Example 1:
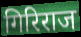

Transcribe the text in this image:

गिरिराज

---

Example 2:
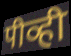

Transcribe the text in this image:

पीव्ही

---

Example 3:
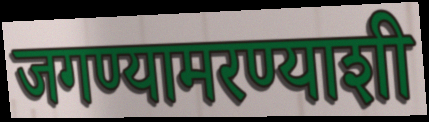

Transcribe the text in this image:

जगण्यामरण्याशी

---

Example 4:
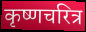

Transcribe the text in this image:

कृष्णचरित्र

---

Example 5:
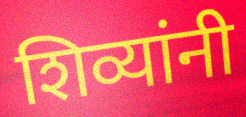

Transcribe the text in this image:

शिव्यांनी